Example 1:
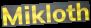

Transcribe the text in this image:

Mikloth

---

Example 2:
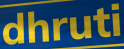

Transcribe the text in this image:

dhruti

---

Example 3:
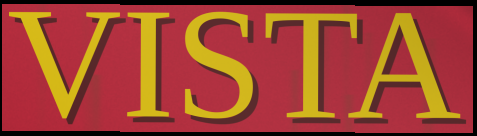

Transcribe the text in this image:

VISTA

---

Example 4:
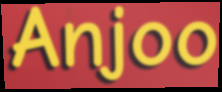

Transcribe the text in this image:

Anjoo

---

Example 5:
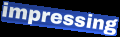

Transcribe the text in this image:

impressing